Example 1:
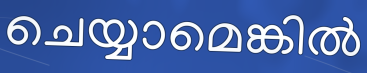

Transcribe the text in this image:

ചെയ്യാമെങ്കിൽ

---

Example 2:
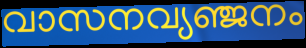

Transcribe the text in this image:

വാസനവ്യഞ്ജനം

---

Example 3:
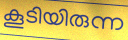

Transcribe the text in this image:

കൂടിയിരുന്ന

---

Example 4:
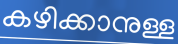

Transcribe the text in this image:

കഴിക്കാനുള്ള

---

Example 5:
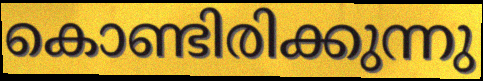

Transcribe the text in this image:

കൊണ്ടിരിക്കുന്നു